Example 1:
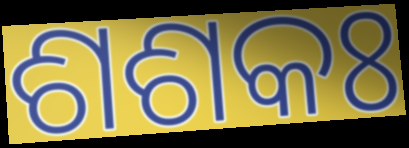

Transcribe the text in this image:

ଶଶକଃ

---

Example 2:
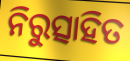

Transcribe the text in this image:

ନିରୁତ୍ସାହିତ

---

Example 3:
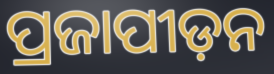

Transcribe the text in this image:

ପ୍ରଜାପୀଡ଼ନ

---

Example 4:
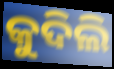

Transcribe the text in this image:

କୁଦିଲି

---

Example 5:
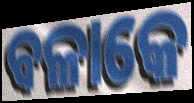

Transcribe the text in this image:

ବଳାକେ